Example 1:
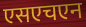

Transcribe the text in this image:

एसएचएन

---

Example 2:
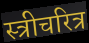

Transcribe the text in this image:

स्त्रीचरित्र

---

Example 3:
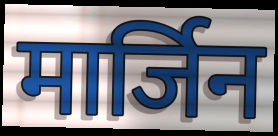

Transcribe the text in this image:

मार्जिन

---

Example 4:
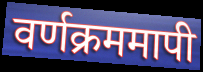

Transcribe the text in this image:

वर्णक्रममापी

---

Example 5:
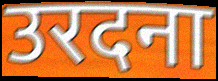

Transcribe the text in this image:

उरदना